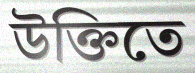
উক্তিতে